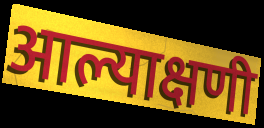
आल्याक्षणी